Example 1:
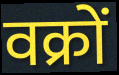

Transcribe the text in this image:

वक्रों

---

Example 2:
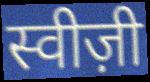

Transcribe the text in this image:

स्वीज़ी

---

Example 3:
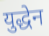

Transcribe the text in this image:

युद्धेन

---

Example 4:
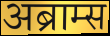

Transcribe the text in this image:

अब्राम्स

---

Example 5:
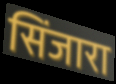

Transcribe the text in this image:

सिंजारा